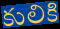
కులికి